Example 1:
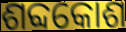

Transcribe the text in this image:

ଶବ୍ଦକୋଶ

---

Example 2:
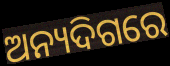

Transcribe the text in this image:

ଅନ୍ୟଦିଗରେ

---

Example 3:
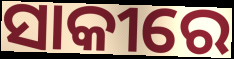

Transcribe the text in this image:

ସାକୀରେ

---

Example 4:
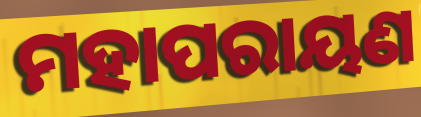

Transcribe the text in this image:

ମହାପରାୟଣ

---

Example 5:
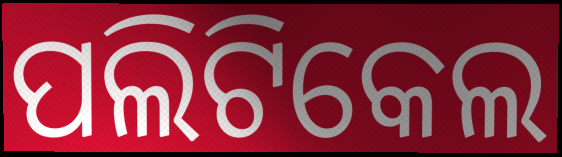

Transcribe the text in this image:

ପଲିଟିକେଲ